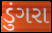
ડુંગરા